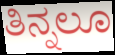
ತಿನ್ನಲೂ